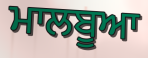
ਮਾਲਬੂਆ